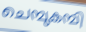
ചെമ്പുകമ്പി